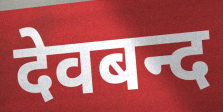
देवबन्द